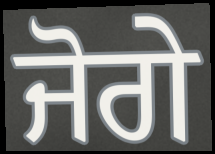
ਜੋਗੇ